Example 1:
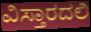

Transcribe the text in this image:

ವಿಸ್ತಾರದಲಿ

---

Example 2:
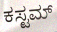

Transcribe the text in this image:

ಕಸ್ಟಮ್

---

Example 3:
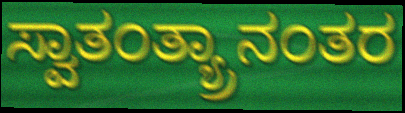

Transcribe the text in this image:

ಸ್ವಾತಂತ್ಯ್ರಾನಂತರ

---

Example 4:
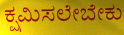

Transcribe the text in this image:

ಕ್ಷಮಿಸಲೇಬೇಕು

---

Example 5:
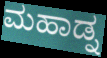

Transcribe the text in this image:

ಮಹಾಡ್ನ